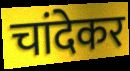
चांदेकर